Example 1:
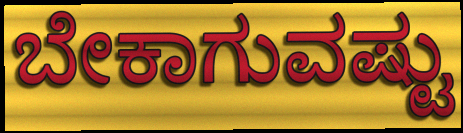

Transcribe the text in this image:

ಬೇಕಾಗುವಷ್ಟು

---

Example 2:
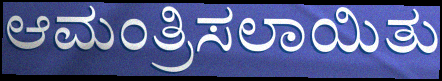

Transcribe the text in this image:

ಆಮಂತ್ರಿಸಲಾಯಿತು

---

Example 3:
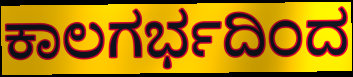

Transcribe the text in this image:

ಕಾಲಗರ್ಭದಿಂದ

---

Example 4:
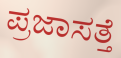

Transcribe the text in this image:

ಪ್ರಜಾಸತ್ತೆ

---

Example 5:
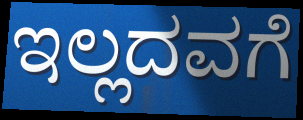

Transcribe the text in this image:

ಇಲ್ಲದವಗೆ